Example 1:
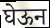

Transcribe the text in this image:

घेऊन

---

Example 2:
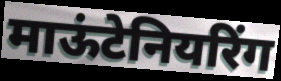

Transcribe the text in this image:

माऊंटेनियरिंग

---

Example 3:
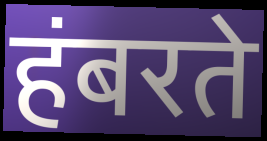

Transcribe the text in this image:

हंबरते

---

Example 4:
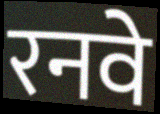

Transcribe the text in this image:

रनवे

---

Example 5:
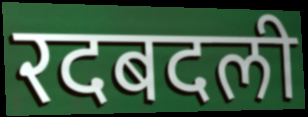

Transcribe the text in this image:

रदबदली